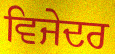
ਵਿਜੇਦਰ